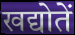
खद्योतें